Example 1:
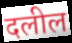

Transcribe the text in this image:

दलील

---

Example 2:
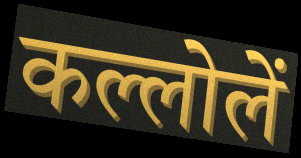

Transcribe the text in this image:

कल्लोलें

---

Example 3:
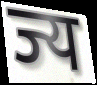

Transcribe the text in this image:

ज्य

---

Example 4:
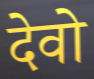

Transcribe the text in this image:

देवो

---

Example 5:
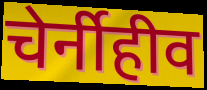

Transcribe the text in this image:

चेर्नीहीव